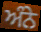
ਅੰਨੇ